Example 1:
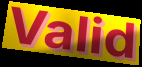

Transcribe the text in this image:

Valid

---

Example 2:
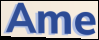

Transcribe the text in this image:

Ame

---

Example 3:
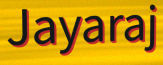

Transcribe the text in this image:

Jayaraj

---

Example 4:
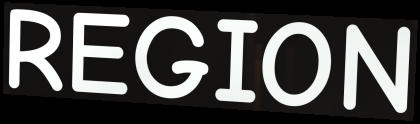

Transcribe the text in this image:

REGION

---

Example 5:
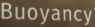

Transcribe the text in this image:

Buoyancy